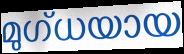
മുഗ്ധയായ